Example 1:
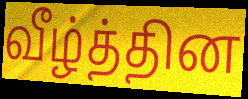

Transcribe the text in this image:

வீழ்த்தின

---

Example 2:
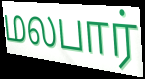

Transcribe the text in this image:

மலபார்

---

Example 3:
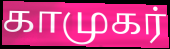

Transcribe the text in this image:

காமுகர்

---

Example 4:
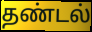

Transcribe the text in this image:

தண்டல்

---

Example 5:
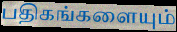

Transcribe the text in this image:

பதிகங்களையும்